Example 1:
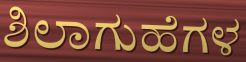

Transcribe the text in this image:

ಶಿಲಾಗುಹೆಗಳ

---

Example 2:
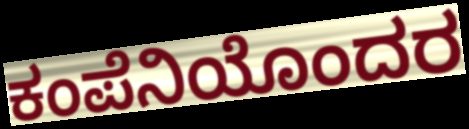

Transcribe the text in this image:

ಕಂಪೆನಿಯೊಂದರ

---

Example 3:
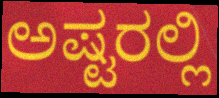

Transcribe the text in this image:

ಅಷ್ಟರಲ್ಲಿ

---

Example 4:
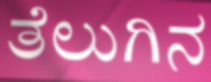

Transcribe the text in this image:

ತೆಲುಗಿನ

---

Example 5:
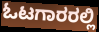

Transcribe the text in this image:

ಓಟಗಾರರಲ್ಲಿ